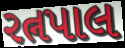
રત્નપાલ